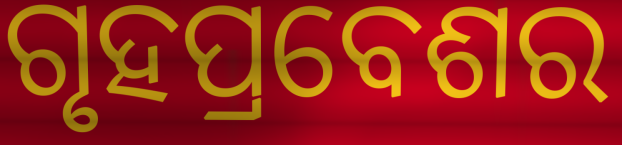
ଗୃହପ୍ରବେଶର